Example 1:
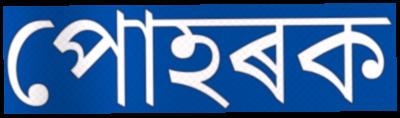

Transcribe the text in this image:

পোহৰক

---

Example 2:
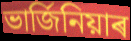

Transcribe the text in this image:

ভাৰ্জিনিয়াৰ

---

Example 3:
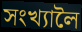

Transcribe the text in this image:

সংখ্যালৈ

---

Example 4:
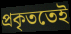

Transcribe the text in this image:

প্ৰকৃততেই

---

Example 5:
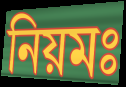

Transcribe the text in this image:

নিয়মঃ